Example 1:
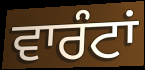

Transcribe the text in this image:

ਵਾਰੰਟਾਂ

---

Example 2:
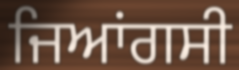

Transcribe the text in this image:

ਜਿਆਂਗਸੀ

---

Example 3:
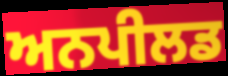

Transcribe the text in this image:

ਅਨਪੀਲਡ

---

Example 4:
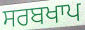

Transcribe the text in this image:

ਸਰਬਖਾਪ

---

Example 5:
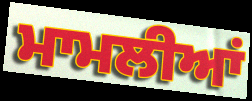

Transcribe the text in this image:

ਮਾਮਲੀਆਂ